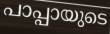
പാപ്പായുടെ